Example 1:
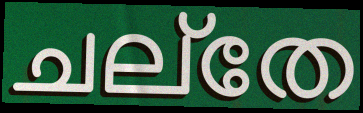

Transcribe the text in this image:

ചല്തേ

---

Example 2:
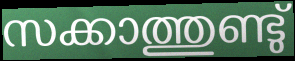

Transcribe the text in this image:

സക്കാത്തുണ്ടു്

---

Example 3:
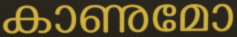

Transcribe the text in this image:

കാണുമോ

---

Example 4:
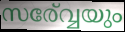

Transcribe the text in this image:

സര്വ്വേയും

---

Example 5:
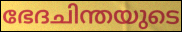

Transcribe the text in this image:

ഭേദചിന്തയുടെ